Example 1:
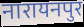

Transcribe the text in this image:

नारायनपुर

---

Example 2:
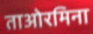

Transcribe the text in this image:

ताओरमिना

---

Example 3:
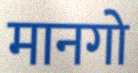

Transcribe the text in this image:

मानगो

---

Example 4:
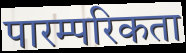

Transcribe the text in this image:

पारम्परिकता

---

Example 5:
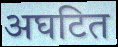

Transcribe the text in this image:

अघटित